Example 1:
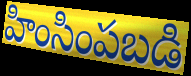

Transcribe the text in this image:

హింసింపబడి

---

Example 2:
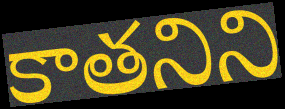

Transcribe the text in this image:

కాతనిని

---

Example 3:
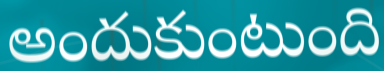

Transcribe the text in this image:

అందుకుంటుంది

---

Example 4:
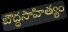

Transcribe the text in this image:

బౌద్ధసాహిత్యం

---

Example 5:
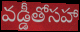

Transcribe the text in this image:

వడ్డీతోసహా